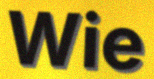
Wie